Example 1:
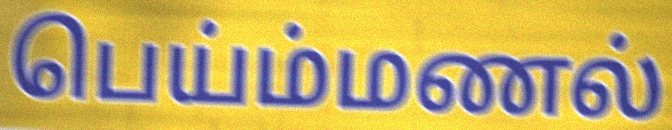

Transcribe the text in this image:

பெய்ம்மணல்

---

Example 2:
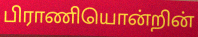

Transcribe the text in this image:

பிராணியொன்றின்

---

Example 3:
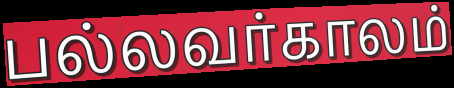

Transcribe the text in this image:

பல்லவர்காலம்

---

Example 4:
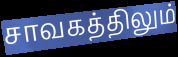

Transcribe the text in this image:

சாவகத்திலும்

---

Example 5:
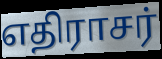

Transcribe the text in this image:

எதிராசர்